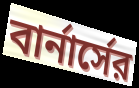
বার্নার্সের